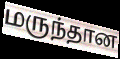
மருந்தான